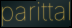
parittal